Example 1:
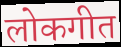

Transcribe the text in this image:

लोकगीत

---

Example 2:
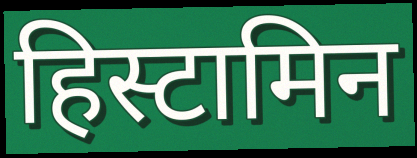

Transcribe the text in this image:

हिस्टामिन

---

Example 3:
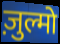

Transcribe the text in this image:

ज़ुल्मो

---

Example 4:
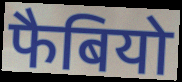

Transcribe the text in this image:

फैबियो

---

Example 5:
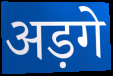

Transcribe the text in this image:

अड़गे